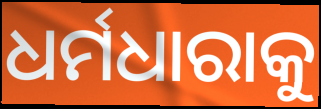
ଧର୍ମଧାରାକୁ